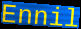
Ennil